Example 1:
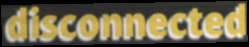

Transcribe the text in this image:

disconnected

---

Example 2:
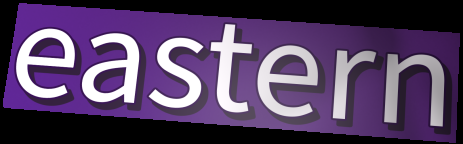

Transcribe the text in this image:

eastern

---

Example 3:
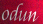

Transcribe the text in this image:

odun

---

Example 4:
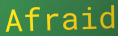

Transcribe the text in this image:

Afraid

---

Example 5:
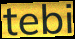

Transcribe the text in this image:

tebi